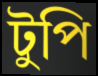
টুপি